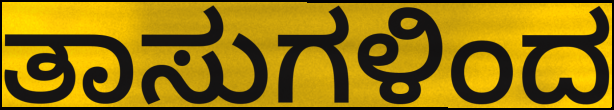
ತಾಸುಗಳಿಂದ